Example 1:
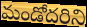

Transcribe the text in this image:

మండోదరిని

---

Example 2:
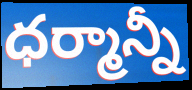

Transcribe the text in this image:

ధర్మాన్నీ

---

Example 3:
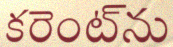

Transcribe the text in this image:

కరెంట్‌ను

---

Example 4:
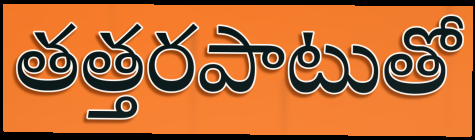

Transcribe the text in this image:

తత్తరపాటుతో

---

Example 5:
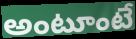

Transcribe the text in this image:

అంటూంటే